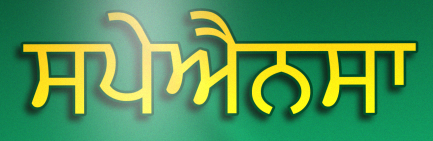
ਸਪੇਐਨਸਾ